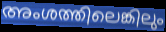
അംശത്തിലെങ്കിലും